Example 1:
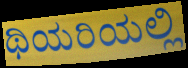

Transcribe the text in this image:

ಥಿಯರಿಯಲ್ಲಿ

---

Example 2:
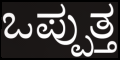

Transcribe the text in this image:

ಒಪ್ಪುತ್ತ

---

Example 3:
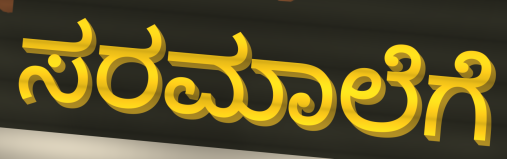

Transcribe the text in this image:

ಸರಮಾಲೆಗೆ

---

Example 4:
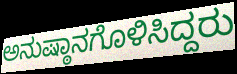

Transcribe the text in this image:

ಅನುಷ್ಠಾನಗೊಳಿಸಿದ್ದರು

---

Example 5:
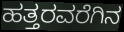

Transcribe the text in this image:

ಹತ್ತರವರೆಗಿನ